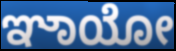
ಞಾಯೋ